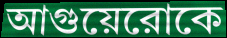
আগুয়েরোকে